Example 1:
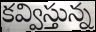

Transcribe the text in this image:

కవ్విస్తున్న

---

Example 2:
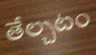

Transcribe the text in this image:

తేల్చటం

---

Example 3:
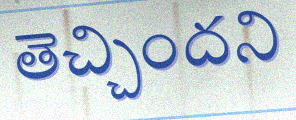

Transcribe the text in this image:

తెచ్చిందని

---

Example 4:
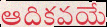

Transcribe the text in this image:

ఆదికవయే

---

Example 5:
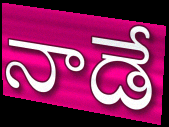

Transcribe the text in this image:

నాడే